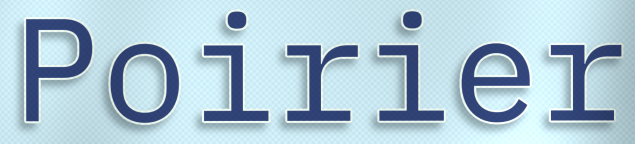
Poirier